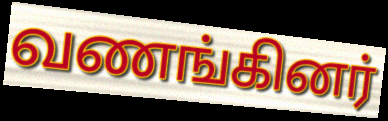
வணங்கினர்